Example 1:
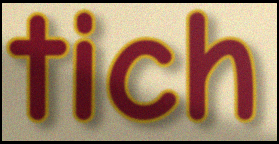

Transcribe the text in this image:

tich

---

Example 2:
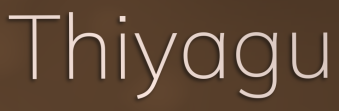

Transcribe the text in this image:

Thiyagu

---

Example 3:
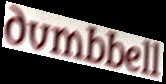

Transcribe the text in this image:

dumbbell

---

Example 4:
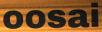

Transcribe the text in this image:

oosai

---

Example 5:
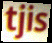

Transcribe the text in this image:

tjis